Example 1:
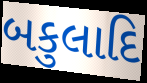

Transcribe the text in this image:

બકુલાદિ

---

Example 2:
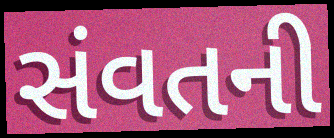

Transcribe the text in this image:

સંવતની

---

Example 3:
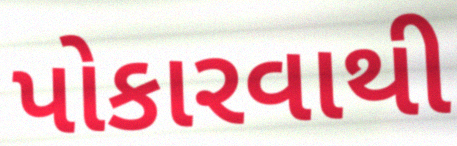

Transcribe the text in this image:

પોકારવાથી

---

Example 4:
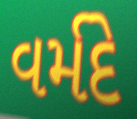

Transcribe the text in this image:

વર્મદે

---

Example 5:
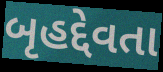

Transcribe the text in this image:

બૃહદ્દેવતા